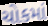
ચોકમાં